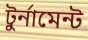
টুর্নামেন্ট